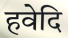
हवेदि